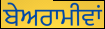
ਬੇਅਰਾਮੀਵਾਂ